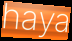
haya